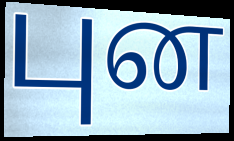
புன